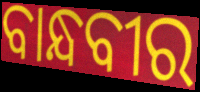
ବାନ୍ଧବୀର